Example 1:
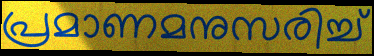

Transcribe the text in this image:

പ്രമാണമനുസരിച്ച്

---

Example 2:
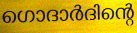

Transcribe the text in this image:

ഗൊദാർദിന്റെ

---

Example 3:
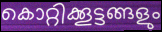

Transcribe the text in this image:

കൊറ്റിക്കൂട്ടങ്ങളും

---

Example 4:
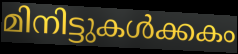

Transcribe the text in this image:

മിനിട്ടുകൾക്കകം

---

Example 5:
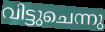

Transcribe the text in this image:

വിട്ടുചെന്നു